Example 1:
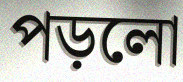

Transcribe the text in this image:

পড়লো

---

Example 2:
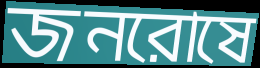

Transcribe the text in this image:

জনরোষে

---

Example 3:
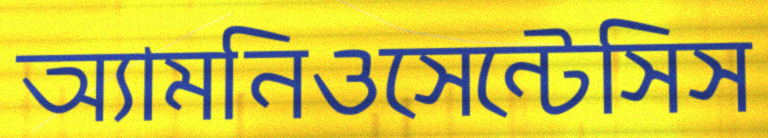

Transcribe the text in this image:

অ্যামনিওসেন্টেসিস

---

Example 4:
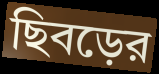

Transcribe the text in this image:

ছিবড়ের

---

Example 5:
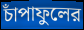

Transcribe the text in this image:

চাঁপাফুলের